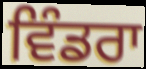
ਵਿੰਡਰਾ